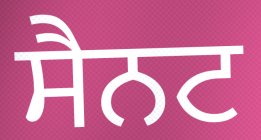
ਸੈਨਟ